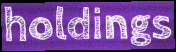
holdings